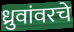
ध्रुवांवरचे